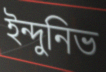
ইন্দুনিভ